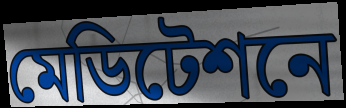
মেডিটেশনে